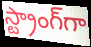
స్ట్రాంగ్‌గా